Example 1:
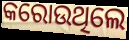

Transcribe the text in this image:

କରୋଉଥିଲେ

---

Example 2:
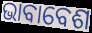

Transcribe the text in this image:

ଭାବାବେଶ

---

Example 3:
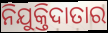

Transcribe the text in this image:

ନିଯୁକ୍ତିଦାତାର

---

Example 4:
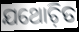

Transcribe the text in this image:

ଯଥୋଚ଼ିତ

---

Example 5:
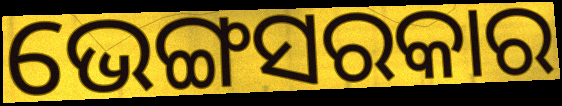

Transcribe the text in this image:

ଭେଙ୍ଗସରକାର